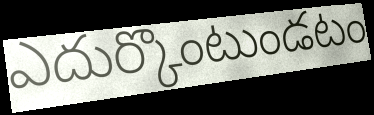
ఎదుర్కొంటుండటం